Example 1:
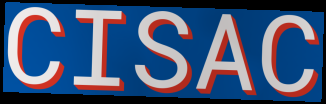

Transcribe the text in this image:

CISAC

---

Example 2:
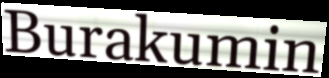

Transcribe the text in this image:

Burakumin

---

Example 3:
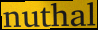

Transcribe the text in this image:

nuthal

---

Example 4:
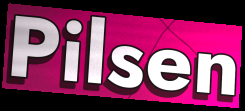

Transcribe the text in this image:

Pilsen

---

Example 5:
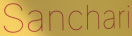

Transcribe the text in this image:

Sanchari